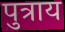
पुत्राय